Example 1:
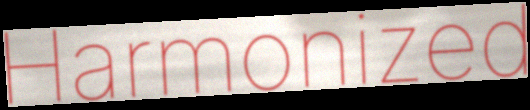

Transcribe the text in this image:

Harmonized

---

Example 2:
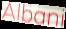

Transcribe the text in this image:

Albani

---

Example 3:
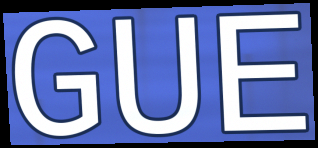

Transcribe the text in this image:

GUE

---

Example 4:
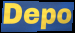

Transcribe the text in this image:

Depo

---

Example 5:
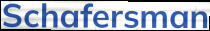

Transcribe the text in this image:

Schafersman